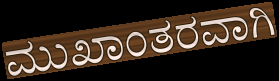
ಮುಖಾಂತರವಾಗಿ